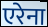
एरेना